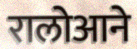
रालोआने